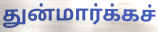
துன்மார்க்கச்